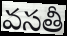
వసతీ